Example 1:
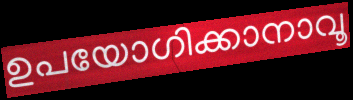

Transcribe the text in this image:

ഉപയോഗിക്കാനാവൂ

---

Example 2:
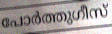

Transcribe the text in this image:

പോർത്തുഗീസ്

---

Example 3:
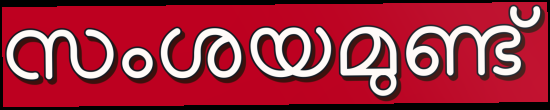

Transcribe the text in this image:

സംശയമുണ്ട്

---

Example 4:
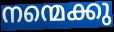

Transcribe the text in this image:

നന്മെക്കു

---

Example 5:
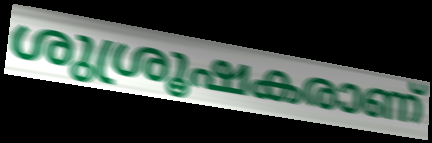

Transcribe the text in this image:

ശുശ്രൂഷകരാണ്